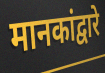
मानकांद्वारे